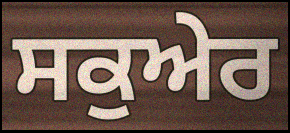
ਸਕੁਅੇਰ